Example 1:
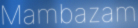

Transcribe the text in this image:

Mambazam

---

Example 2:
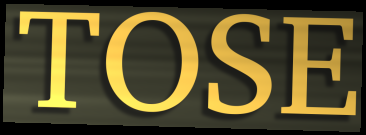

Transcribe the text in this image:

TOSE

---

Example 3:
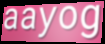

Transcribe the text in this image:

aayog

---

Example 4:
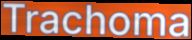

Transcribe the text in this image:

Trachoma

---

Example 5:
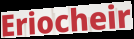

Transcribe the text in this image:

Eriocheir